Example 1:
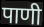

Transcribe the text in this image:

पाणी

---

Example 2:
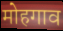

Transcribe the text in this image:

मोहगाव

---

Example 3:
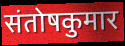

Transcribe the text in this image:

संतोषकुमार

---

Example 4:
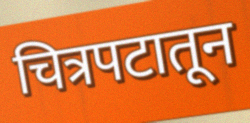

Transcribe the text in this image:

चित्रपटातून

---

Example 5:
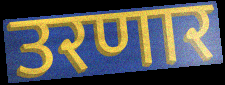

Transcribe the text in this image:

उरणार